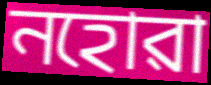
নহোৱা